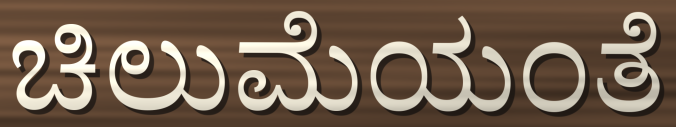
ಚಿಲುಮೆಯಂತೆ